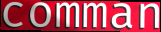
comman